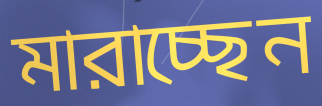
মারাচ্ছেন